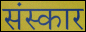
संस्कार